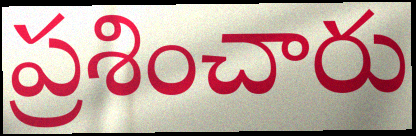
ప్రశించారు